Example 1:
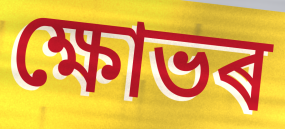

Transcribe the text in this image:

ক্ষোভৰ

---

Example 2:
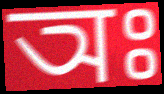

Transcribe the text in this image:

অঃ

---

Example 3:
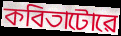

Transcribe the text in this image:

কবিতাটোৱে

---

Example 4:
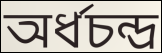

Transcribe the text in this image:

অৰ্ধচন্দ্ৰ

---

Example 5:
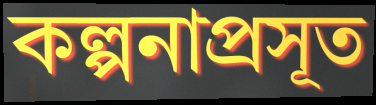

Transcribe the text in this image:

কল্পনাপ্ৰসূত